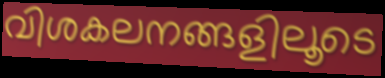
വിശകലനങ്ങളിലൂടെ